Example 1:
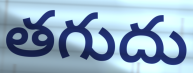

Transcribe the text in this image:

తగుదు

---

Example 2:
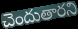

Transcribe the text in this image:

చెందుతారని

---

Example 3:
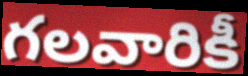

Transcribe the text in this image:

గలవారికీ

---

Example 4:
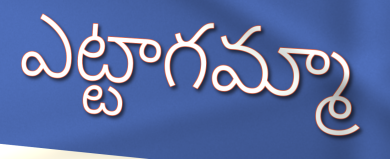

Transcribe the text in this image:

ఎట్టాగమ్మా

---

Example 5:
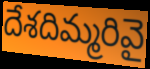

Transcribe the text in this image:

దేశదిమ్మరివై